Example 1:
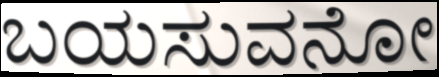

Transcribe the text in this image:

ಬಯಸುವನೋ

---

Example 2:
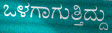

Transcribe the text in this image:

ಒಳಗಾಗುತ್ತಿದ್ದು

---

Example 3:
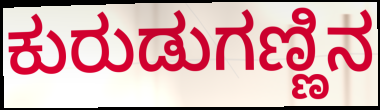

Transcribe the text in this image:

ಕುರುಡುಗಣ್ಣಿನ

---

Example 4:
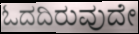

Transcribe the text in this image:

ಓದದಿರುವುದೇ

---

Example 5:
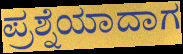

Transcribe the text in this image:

ಪ್ರಶ್ನೆಯಾದಾಗ